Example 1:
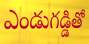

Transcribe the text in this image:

ఎండుగడ్డితో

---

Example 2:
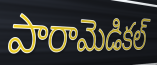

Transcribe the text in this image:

పారామెడికల్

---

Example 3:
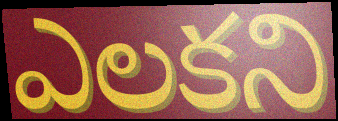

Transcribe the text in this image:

ఎలకని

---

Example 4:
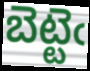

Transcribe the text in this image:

బెట్టెఁ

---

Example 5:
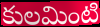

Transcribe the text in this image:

కులమింటి